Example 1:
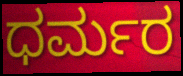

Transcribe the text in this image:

ಧರ್ಮರ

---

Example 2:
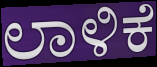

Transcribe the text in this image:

ಲಾಳಿಕೆ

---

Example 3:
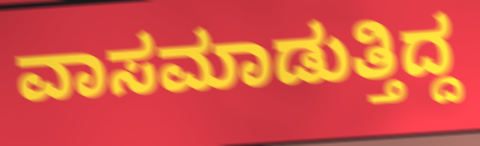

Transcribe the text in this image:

ವಾಸಮಾಡುತ್ತಿದ್ದ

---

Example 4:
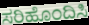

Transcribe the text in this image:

ಸರಿಹೊಂದಿಸಿ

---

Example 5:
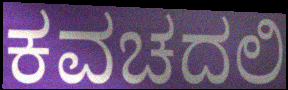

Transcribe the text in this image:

ಕವಚದಲಿ